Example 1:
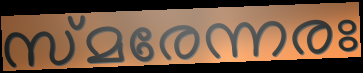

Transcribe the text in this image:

സ്മരേന്നരഃ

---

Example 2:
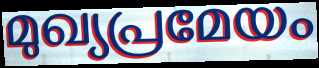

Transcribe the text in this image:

മുഖ്യപ്രമേയം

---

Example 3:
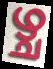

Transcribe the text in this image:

ഴ്ച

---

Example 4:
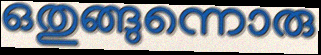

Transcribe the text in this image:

ഒതുങ്ങുന്നൊരു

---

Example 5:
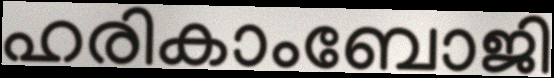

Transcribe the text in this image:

ഹരികാംബോജി